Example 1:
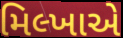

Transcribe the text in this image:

મિલ્ખાએ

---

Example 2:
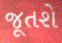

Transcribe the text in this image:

જૂતશે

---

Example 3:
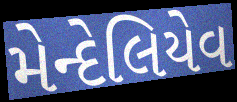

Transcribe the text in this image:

મેન્દેલિયેવ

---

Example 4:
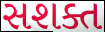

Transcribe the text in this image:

સશક્ત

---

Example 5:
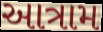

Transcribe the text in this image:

આત્રામ